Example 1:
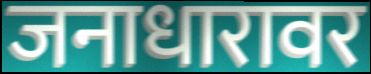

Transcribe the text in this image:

जनाधारावर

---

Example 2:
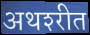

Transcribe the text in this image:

अथश्रीत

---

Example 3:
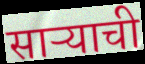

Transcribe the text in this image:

साऱ्याची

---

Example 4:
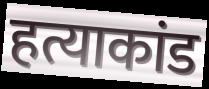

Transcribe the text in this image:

हत्याकांड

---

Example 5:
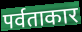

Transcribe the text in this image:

पर्वताकार